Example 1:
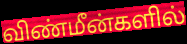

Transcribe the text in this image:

விண்மீன்களில்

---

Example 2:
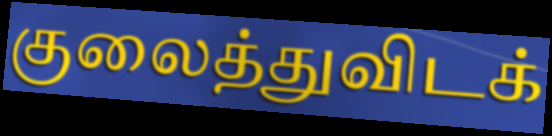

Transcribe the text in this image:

குலைத்துவிடக்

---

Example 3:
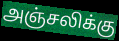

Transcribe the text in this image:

அஞ்சலிக்கு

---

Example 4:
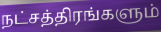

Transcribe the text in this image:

நட்சத்திரங்களும்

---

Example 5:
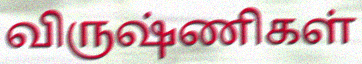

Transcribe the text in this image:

விருஷ்ணிகள்